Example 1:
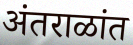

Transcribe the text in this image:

अंतराळांत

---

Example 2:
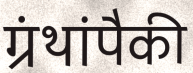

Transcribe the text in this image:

ग्रंथांपैकी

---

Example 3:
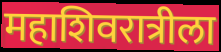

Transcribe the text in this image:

महाशिवरात्रीला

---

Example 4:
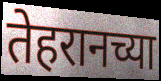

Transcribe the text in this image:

तेहरानच्या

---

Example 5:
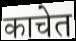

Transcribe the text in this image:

काचेत